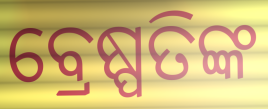
ବ୍ରେଷ୍ପତିଙ୍କ